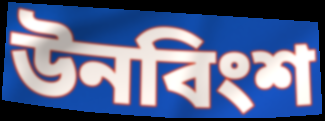
উনবিংশ